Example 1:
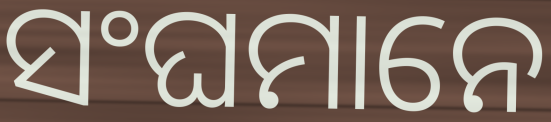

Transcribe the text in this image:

ସଂଘମାନେ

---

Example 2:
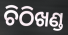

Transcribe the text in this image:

ଚିଠିଖଣ୍ଡ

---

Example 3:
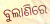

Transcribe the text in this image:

ବୁଲାଣିରେ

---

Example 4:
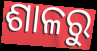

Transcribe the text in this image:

ଶାଳରୁ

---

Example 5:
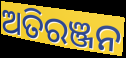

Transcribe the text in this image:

ଅତିରଞ୍ଜନ